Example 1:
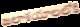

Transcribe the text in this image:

జలాశయాలలోకి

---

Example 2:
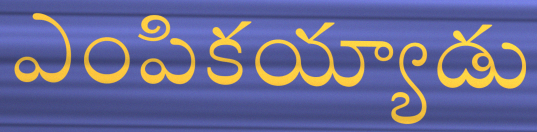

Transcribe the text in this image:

ఎంపికయ్యాడు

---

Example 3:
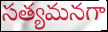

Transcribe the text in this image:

సత్యమనగా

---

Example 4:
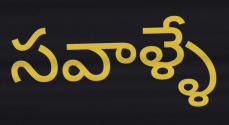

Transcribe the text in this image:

సవాళ్ళే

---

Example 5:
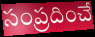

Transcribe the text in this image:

సంప్రదించే